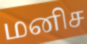
மனிச